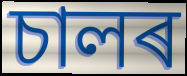
চালৰ